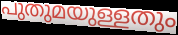
പുതുമയുള്ളതും